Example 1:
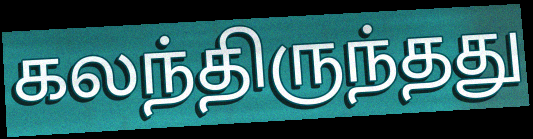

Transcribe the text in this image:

கலந்திருந்தது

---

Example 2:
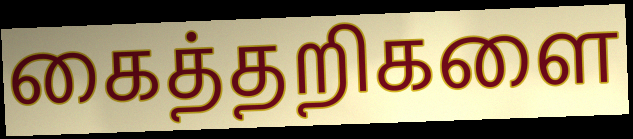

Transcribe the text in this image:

கைத்தறிகளை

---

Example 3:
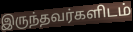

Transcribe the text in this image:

இருந்தவர்களிடம்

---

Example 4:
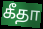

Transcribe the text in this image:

கீதா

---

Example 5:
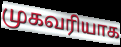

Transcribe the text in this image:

முகவரியாக